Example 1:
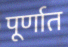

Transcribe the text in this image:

पूर्णात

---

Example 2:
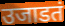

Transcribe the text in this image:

उजाडतं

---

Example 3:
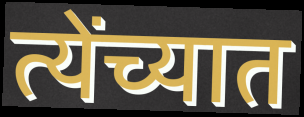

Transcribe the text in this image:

त्येंच्यात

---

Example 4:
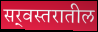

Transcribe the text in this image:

सर्वस्तरातील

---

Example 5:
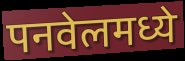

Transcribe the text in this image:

पनवेलमध्ये